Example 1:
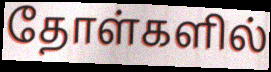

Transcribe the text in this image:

தோள்களில்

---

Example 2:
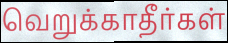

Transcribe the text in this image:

வெறுக்காதீர்கள்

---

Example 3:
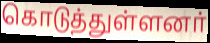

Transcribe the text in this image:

கொடுத்துள்ளனர்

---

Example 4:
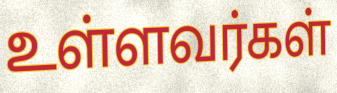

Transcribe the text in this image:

உள்ளவர்கள்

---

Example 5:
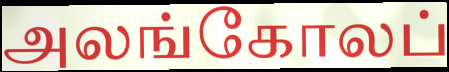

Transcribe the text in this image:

அலங்கோலப்